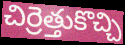
చిర్రెత్తుకొచ్చి